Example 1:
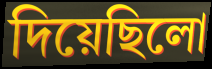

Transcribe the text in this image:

দিয়েছিলো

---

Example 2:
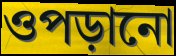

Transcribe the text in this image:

ওপড়ানো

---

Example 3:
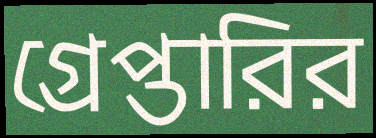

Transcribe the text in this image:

গ্রেপ্তারির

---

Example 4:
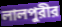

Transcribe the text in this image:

লালপুরীর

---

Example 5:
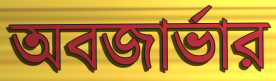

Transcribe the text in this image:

অবজার্ভার